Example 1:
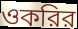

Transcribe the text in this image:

ওকরির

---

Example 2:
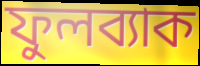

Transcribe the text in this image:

ফুলব্যাক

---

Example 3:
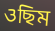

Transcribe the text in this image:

ওছিম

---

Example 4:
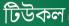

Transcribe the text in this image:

টিউকল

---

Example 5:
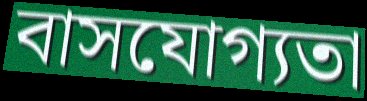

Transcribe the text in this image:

বাসযোগ্যতা